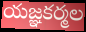
యజ్ఞకర్మల